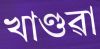
খাণ্ডৱা